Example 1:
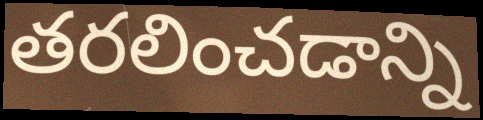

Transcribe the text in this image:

తరలించడాన్ని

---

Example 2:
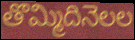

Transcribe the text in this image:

తొమ్మిదినెలల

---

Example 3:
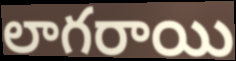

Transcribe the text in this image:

లాగరాయి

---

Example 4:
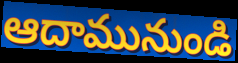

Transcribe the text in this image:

ఆదామునుండి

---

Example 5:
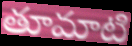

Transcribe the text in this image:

తూమాటి